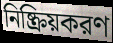
নিষ্ক্রিয়করণ